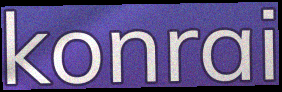
konrai